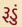
રૂડું